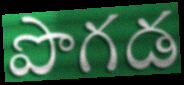
పొగడ